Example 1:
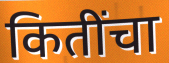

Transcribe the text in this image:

कितींचा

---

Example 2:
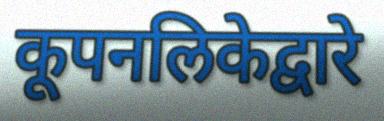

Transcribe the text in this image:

कूपनलिकेद्वारे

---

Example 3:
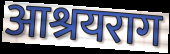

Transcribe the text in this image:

आश्रयराग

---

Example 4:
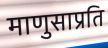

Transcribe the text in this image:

माणुसाप्रति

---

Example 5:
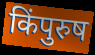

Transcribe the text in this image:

किंपुरुष